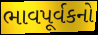
ભાવપૂર્વકનો